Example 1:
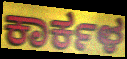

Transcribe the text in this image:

ಕಾರ್ಕಳ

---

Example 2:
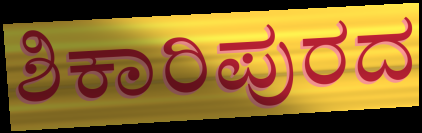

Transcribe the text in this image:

ಶಿಕಾರಿಪುರದ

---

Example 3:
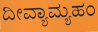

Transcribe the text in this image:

ದೀವ್ಯಾಮ್ಯಹಂ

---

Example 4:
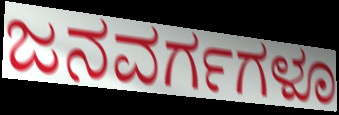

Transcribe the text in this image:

ಜನವರ್ಗಗಳೂ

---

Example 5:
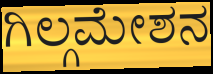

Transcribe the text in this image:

ಗಿಲ್ಗಮೇಶನ